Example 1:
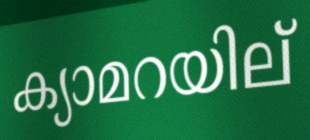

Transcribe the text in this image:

ക്യാമറയില്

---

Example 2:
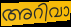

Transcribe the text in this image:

അറിവാ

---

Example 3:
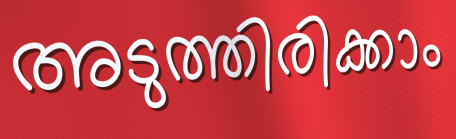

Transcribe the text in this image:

അടുത്തിരിക്കാം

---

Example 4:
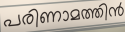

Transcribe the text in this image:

പരിണാമത്തിൻ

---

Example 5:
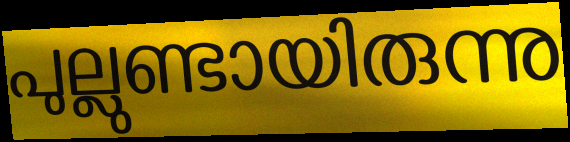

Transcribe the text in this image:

പുല്ലുണ്ടായിരുന്നു